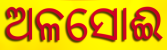
ଅଳସୋଈ